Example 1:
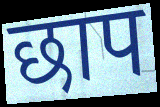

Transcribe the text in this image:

छाप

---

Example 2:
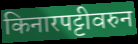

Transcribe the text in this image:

किनारपट्टीवरुन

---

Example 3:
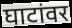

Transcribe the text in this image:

घाटांवर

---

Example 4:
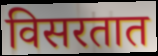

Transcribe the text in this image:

विसरतात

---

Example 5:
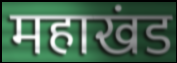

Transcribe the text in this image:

महाखंड